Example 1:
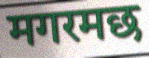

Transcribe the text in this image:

मगरमछ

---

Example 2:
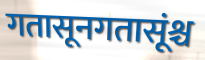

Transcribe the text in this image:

गतासूनगतासूंश्च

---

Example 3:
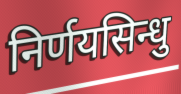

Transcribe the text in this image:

निर्णयसिन्धु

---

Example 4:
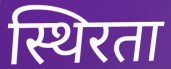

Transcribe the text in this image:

स्थिरता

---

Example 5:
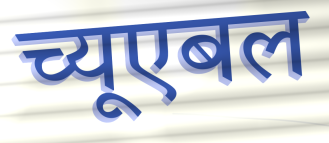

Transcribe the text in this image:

च्यूएबल